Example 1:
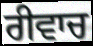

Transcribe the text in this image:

ਰੀਵਾਚ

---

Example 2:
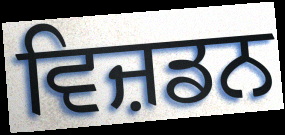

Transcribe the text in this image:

ਵਿਜ਼ਡਨ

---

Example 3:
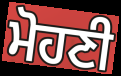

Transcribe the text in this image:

ਮੋਹਣੀ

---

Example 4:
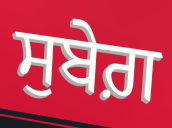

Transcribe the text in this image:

ਸੁਬੇਗ਼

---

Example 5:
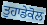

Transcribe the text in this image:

ਤੁਹਾਡੇਕੋਲ